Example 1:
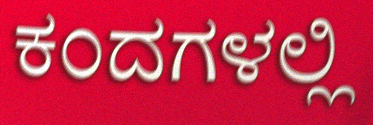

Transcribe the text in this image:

ಕಂದಗಳಲ್ಲಿ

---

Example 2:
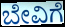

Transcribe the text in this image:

ಬೇವಿಗೆ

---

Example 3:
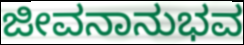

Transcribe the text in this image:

ಜೀವನಾನುಭವ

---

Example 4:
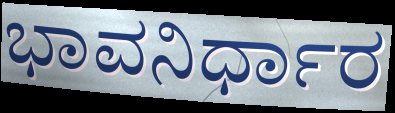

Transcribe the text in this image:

ಭಾವನಿರ್ಧಾರ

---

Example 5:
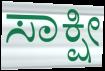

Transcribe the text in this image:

ಸಾಕ್ಷೀ